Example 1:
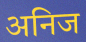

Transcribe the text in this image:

अनिज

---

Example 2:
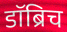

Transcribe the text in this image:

डॉब्रिच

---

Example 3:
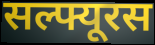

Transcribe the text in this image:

सल्फ्यूरस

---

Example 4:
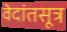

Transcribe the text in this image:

वेदांतसूत्र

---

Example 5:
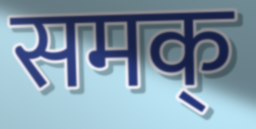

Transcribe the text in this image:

समक्